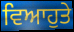
ਵਿਆਹੁਤੇ